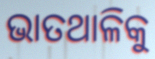
ଭାତଥାଳିକୁ